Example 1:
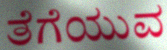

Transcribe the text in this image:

ತೆಗೆಯುವ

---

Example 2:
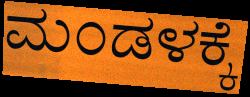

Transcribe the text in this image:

ಮಂಡಳಕ್ಕೆ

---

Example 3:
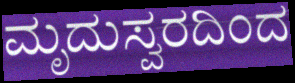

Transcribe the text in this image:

ಮೃದುಸ್ವರದಿಂದ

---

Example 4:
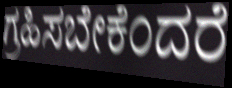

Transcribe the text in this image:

ಗ್ರಹಿಸಬೇಕೆಂದರೆ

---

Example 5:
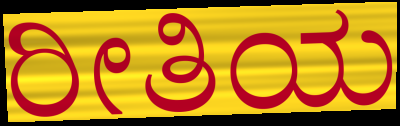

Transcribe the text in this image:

ರೀತಿಯ